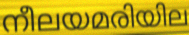
നീലയമരിയില